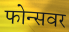
फोन्सवर